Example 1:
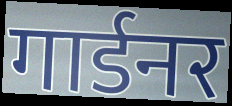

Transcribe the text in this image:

गार्डनर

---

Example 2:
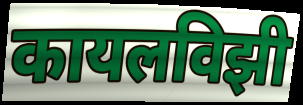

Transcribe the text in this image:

कायलविझी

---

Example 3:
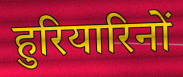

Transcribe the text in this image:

हुरियारिनों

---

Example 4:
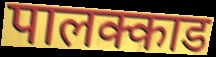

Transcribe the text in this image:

पालक्काड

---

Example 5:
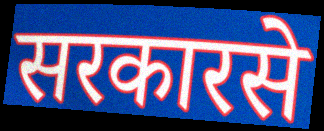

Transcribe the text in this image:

सरकारसे